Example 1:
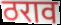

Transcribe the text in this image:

ठराव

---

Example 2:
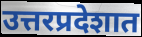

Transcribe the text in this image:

उत्तरप्रदेशात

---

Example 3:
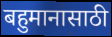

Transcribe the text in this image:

बहुमानासाठी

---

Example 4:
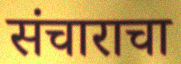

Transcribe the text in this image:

संचाराचा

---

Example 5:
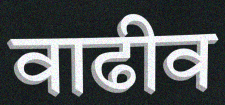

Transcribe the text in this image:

वाढीव